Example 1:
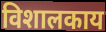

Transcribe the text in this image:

विशालकाय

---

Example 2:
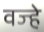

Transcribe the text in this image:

वज्हे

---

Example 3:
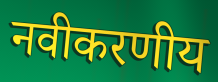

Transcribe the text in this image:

नवीकरणीय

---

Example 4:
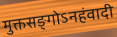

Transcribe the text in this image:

मुक्तसङ्गोऽनहंवादी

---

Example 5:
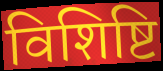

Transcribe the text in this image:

विशिष्टि